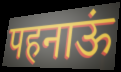
पहनाऊं